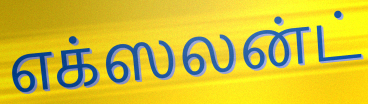
எக்ஸலன்ட்